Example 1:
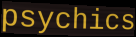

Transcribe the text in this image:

psychics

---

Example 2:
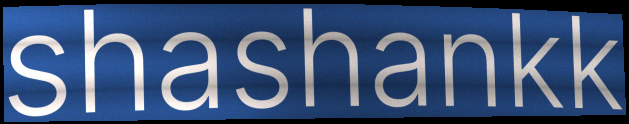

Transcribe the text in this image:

shashankk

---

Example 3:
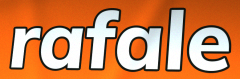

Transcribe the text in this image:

rafale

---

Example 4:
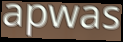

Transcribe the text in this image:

apwas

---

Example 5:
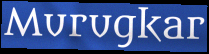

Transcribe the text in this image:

Murugkar